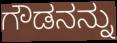
ಗೌಡನನ್ನು